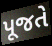
પૂજતે